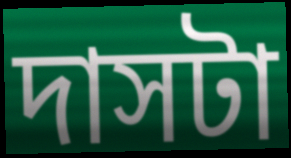
দাসটা